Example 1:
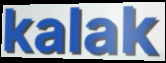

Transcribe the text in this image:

kalak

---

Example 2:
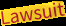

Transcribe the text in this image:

Lawsuit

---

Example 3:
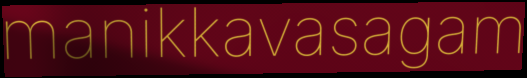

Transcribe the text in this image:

manikkavasagam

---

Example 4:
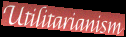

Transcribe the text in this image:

Utilitarianism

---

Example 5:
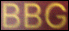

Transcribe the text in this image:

BBG